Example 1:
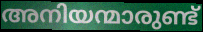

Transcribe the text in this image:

അനിയന്മാരുണ്ട്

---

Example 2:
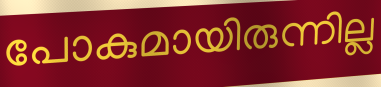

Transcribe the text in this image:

പോകുമായിരുന്നില്ല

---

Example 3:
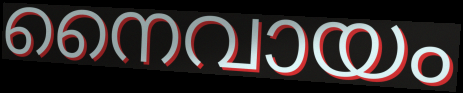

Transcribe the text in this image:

നൈവായം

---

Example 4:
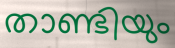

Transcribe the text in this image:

താണ്ടിയും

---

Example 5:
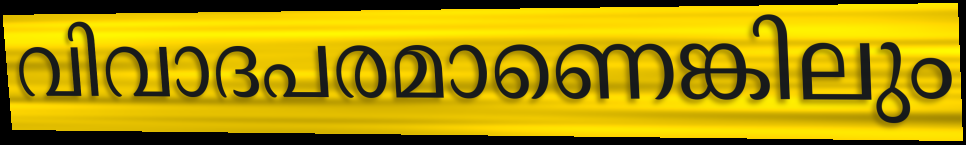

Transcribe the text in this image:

വിവാദപരമാണെങ്കിലും